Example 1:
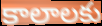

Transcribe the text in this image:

కాలాలకు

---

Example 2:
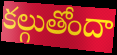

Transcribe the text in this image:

కల్గుతోందా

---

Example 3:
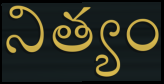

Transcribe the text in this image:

నిత్యం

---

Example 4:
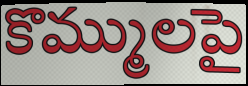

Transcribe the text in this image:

కొమ్ములపై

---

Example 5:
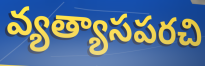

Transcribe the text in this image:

వ్యత్యాసపరచి